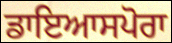
ਡਾਇਆਸਪੋਰਾ